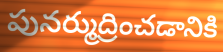
పునర్ముద్రించడానికి